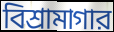
বিশ্রামাগার